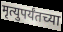
मृत्युपर्यंतच्या